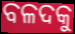
ବଳଦକୁ